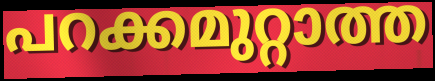
പറക്കമുറ്റാത്ത